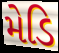
મેડિ